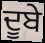
ਦੂਬੇ